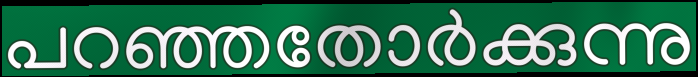
പറഞ്ഞതോർക്കുന്നു